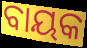
ବାୟକ